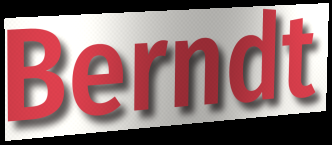
Berndt